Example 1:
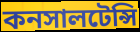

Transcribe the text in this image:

কনসালটেন্সি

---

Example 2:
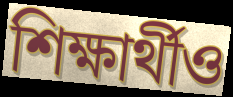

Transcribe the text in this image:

শিক্ষার্থীও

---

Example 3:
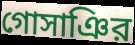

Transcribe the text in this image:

গোসাঞির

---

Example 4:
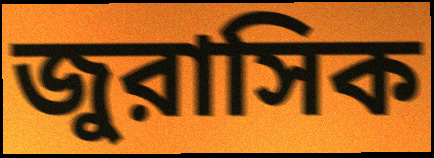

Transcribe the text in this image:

জুরাসিক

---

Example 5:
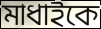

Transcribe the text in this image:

মাধাইকে